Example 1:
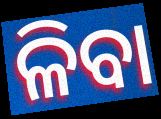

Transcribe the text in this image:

ଳିବା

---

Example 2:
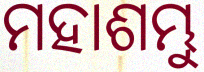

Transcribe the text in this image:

ମହାଶମ୍ଭୁ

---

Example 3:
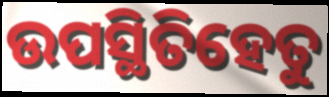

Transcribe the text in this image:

ଉପସ୍ଥିତିହେତୁ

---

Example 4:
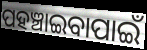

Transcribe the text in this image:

ପହଞ୍ଚାଇବାପାଇଁ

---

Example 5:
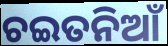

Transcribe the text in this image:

ଚଇତନିଆଁ